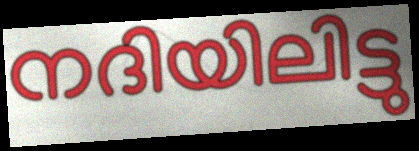
നദിയിലിട്ടു